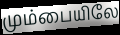
மும்பையிலே